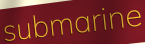
submarine